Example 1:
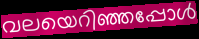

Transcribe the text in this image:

വലയെറിഞ്ഞപ്പോൾ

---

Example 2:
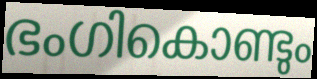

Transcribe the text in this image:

ഭംഗികൊണ്ടും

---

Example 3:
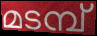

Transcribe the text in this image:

മടമ്പ്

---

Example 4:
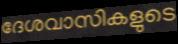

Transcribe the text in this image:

ദേശവാസികളുടെ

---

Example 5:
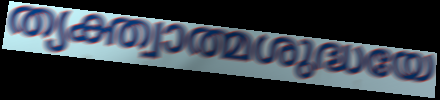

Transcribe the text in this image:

ത്യക്ത്വാത്മശുദ്ധയേ